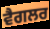
ਵੈਗਲਰ